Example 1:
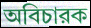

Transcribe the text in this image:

অবিচারক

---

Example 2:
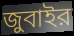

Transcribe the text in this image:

জুবাইর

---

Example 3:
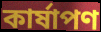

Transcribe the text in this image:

কার্ষাপণ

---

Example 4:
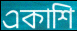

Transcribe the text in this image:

একাশি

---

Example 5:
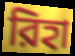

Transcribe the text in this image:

রিহা